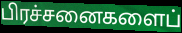
பிரச்சனைகளைப்